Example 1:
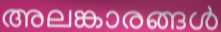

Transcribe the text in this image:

അലങ്കാരങ്ങൾ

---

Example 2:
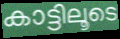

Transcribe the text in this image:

കാട്ടിലൂടെ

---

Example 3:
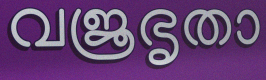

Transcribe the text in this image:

വജ്രഭൃതാ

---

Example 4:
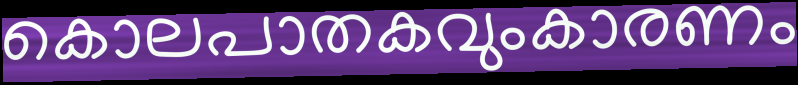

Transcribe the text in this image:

കൊലപാതകവുംകാരണം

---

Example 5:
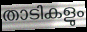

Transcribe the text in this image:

താടികളും